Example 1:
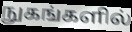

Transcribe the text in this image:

நுகங்களில்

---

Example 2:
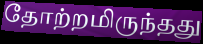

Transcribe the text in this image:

தோற்றமிருந்தது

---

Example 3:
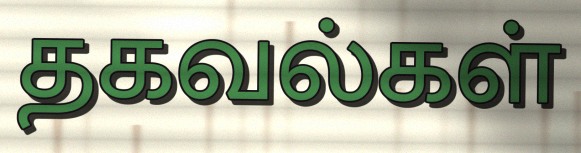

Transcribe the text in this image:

தகவல்கள்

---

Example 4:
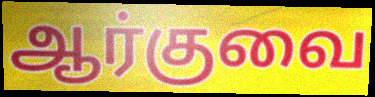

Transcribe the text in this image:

ஆர்குவை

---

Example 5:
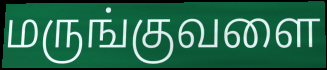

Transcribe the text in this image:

மருங்குவளை